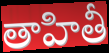
తాహితీ